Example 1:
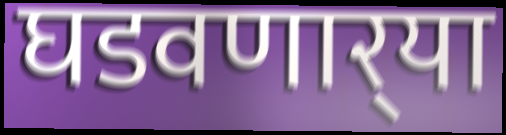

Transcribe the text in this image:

घडवणार्‍या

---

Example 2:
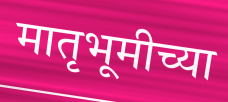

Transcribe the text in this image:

मातृभूमीच्या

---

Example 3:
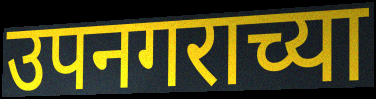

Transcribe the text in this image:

उपनगराच्या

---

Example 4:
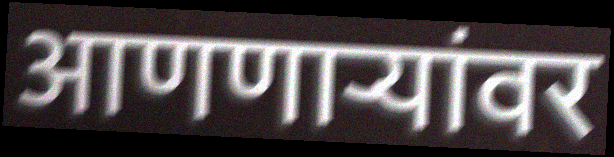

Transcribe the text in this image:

आणणाऱ्यांवर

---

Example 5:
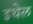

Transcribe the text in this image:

इथेल